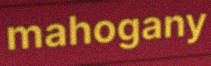
mahogany